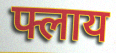
फ्लाय